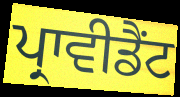
ਪ੍ਰਾਵੀਡੈਂਟ